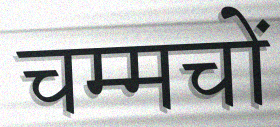
चम्मचों